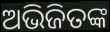
ଅଭିଜିତଙ୍କ